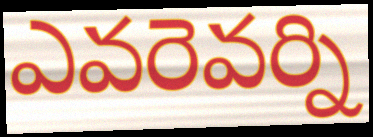
ఎవరెవర్ని